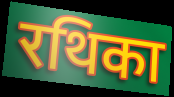
रथिका